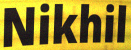
Nikhil